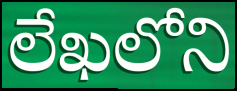
లేఖలోని